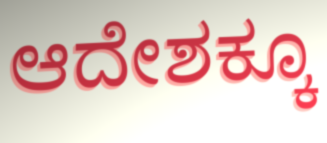
ಆದೇಶಕ್ಕೂ